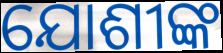
ଯୋଶୀଙ୍କ